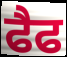
ਫੈਫ